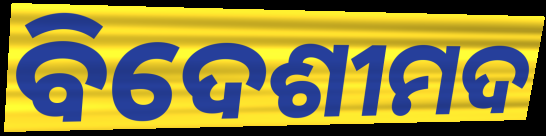
ବିଦେଶୀମଦ